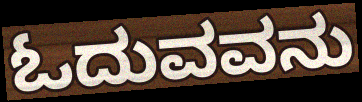
ಓದುವವನು